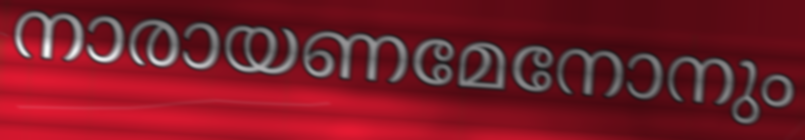
നാരായണമേനോനും